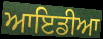
ਆਇਡੀਆ